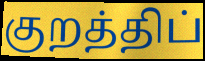
குறத்திப்